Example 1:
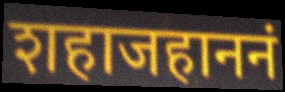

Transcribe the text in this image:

शहाजहाननं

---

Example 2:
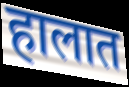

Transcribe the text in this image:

हालात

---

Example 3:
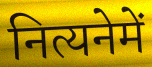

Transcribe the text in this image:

नित्यनेमें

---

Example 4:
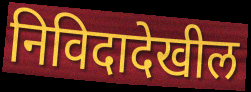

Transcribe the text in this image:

निविदादेखील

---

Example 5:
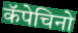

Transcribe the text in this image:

कॅपेचिनो